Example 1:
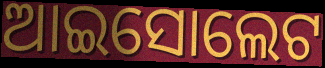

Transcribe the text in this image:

ଆଇସୋଲେଟ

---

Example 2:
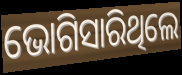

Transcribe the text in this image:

ଭୋଗିସାରିଥିଲେ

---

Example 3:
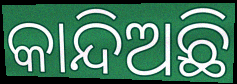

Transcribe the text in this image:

କାନ୍ଦିଅଛି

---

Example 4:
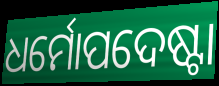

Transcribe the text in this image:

ଧର୍ମୋପଦେଷ୍ଟା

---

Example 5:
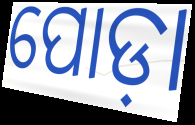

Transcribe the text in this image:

ପୋଡ଼ା